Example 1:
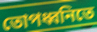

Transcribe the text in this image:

তোপধ্বনিতে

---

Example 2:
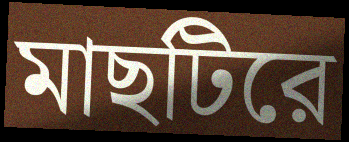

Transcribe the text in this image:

মাছটিরে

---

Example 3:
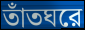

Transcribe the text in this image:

তাঁতঘরে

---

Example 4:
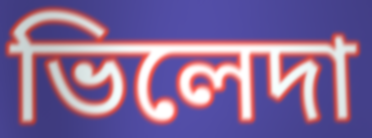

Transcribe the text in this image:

ভিলেদা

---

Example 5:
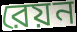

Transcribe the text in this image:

রেয়ন